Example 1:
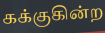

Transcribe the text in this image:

கக்குகின்ற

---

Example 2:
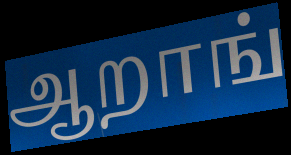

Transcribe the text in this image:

ஆறாங்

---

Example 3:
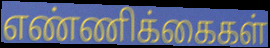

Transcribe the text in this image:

எண்ணிக்கைகள்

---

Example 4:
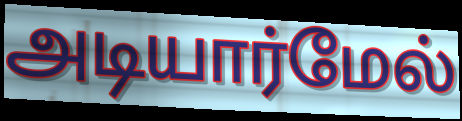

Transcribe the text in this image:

அடியார்மேல்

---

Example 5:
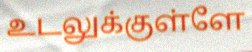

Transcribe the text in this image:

உடலுக்குள்ளே